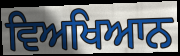
ਵਿਅਖਿਆਨ